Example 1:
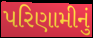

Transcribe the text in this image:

પરિણામીનું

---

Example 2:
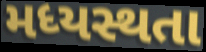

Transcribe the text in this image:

મધ્યસ્થતા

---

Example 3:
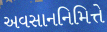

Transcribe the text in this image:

અવસાનનિમિત્તે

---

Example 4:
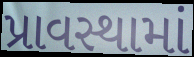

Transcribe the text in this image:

પ્રાવસ્થામાં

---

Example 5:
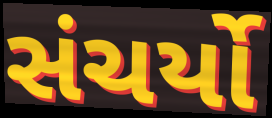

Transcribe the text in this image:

સંચર્યો